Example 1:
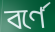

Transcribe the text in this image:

বর্ণে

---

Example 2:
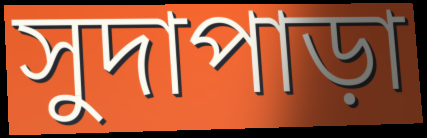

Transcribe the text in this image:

সুদাপাড়া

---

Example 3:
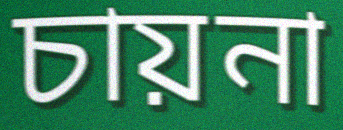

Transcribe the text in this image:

চায়না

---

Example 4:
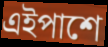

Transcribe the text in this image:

এইপাশে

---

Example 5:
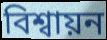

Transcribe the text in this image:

বিশ্বায়ন